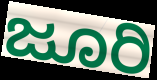
ಜೂರಿ